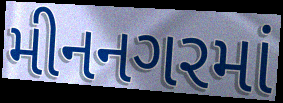
મીનનગરમાં